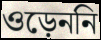
ওড়েননি